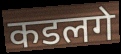
कडलगे